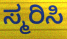
ಸ್ಮರಿಸಿ